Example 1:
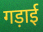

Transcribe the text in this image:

गड़ाई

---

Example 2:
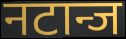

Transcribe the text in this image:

नटान्ज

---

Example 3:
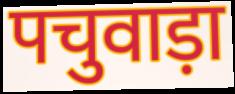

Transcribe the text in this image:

पचुवाड़ा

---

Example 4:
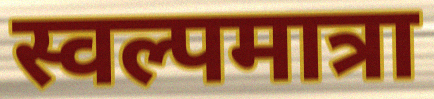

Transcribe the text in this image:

स्वल्पमात्रा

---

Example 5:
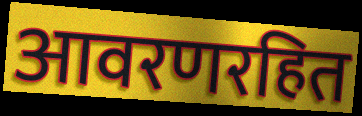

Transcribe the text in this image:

आवरणरहित